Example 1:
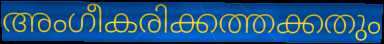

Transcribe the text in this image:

അംഗീകരിക്കത്തക്കതും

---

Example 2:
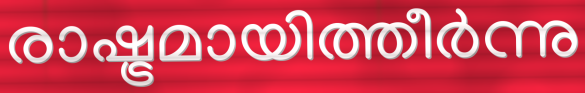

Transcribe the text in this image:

രാഷ്ട്രമായിത്തീർന്നു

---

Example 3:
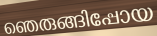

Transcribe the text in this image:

ഞെരുങ്ങിപ്പോയ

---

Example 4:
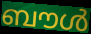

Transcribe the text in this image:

ബൗൾ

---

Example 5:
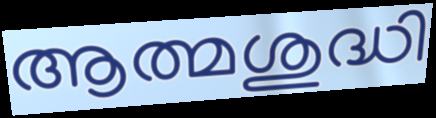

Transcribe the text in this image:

ആത്മശുദ്ധി